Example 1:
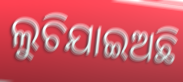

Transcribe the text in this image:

ଲୁଚିଯାଇଅଛି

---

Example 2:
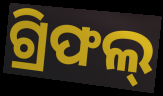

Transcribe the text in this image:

ଗ୍ରିଫଲ୍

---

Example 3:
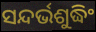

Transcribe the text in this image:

ସନ୍ଦର୍ଭଶୁଦ୍ଧିଂ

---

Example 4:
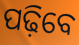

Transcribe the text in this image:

ପଢ଼ିବେ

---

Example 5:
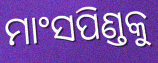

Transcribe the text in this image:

ମାଂସପିଣ୍ଡକୁ